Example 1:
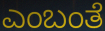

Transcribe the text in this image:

ಎಂಬಂತೆ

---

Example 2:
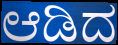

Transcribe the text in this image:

ಆಡಿದ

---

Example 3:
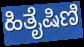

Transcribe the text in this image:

ಹಿತೈಷಿಣಿ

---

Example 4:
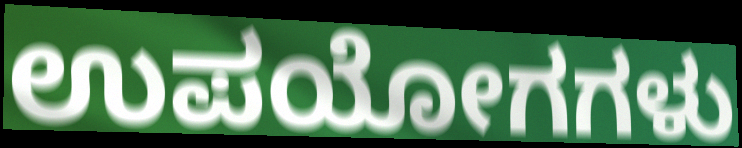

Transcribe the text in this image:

ಉಪಯೋಗಗಳು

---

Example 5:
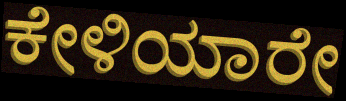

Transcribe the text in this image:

ಕೇಳಿಯಾರೇ